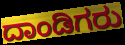
ದಾಂಡಿಗರು